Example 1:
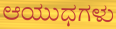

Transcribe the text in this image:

ಆಯುಧಗಳು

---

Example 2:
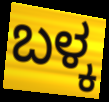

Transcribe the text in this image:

ಬಳ್ಕ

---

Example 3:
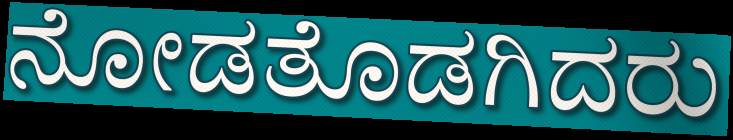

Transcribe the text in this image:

ನೋಡತೊಡಗಿದರು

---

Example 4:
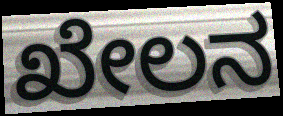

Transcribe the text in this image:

ಖೇಲನ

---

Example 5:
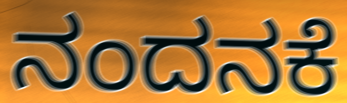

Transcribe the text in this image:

ನಂದನಕೆ